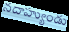
నదాహ్యుండు